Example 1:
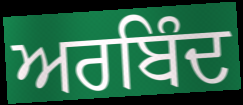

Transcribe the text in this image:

ਅਰਬਿੰਦ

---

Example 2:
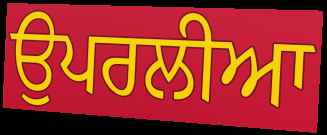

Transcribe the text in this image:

ਉਪਰਲੀਆ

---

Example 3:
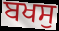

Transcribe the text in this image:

ਬਖਸੁ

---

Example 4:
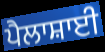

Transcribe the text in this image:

ਪੈਲਾਸ਼ਾਈ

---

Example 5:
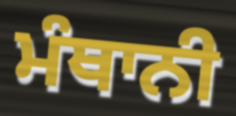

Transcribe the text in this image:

ਮੰਥਾਨੀ